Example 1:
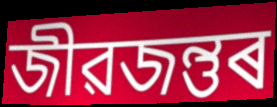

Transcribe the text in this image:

জীৱজন্তুৰ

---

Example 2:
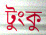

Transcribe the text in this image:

টুংকু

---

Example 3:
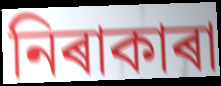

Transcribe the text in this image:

নিৰাকাৰা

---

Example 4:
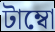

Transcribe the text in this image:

টাম্বো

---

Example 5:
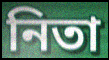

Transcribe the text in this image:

নিতা